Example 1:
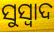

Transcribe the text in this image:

ସୁସ୍ୱାଦ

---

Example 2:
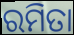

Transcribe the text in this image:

ରମିତା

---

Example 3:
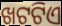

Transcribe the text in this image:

ଖଟଟିଏ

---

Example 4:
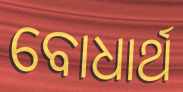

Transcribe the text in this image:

ବୋଧାର୍ଥ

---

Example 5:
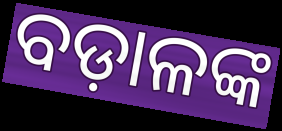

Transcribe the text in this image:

ବଡ଼ାଳଙ୍କ